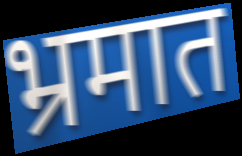
भ्रमात